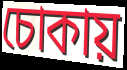
চোকায়